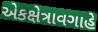
એકક્ષેત્રાવગાહે